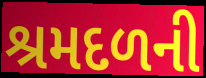
શ્રમદળની